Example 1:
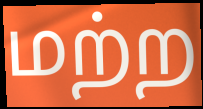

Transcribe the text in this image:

மற்ற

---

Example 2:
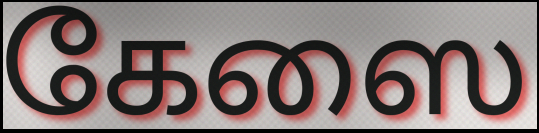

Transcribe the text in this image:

கேஸை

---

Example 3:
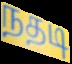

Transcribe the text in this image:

நதடி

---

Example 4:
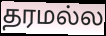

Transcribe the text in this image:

தரமல்ல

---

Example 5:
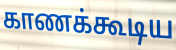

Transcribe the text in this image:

காணக்கூடிய